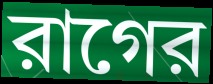
রাগের